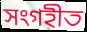
সংগহীত